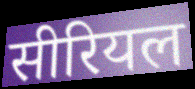
सीरियल